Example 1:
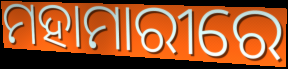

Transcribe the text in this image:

ମହାମାରୀରେ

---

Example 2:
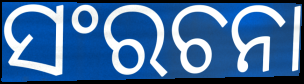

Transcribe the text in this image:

ସଂରଚନା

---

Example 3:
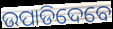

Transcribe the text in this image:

ଉପାଡିଦେବେ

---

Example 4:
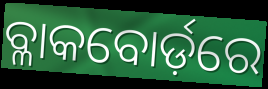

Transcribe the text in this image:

ବ୍ଳାକବୋର୍ଡ଼ରେ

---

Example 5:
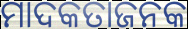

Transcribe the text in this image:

ମାଦକତାଜନକ